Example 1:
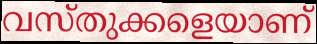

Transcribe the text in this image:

വസ്തുക്കളെയാണ്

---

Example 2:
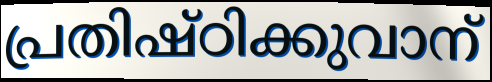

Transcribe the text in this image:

പ്രതിഷ്ഠിക്കുവാന്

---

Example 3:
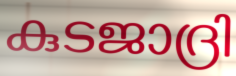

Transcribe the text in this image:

കുടജാദ്രി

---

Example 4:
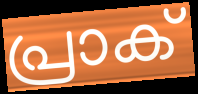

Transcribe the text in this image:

പ്രാക്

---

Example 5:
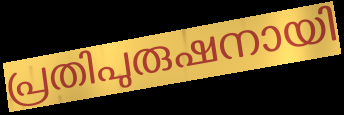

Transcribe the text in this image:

പ്രതിപുരുഷനായി